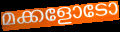
മക്കളോടോ